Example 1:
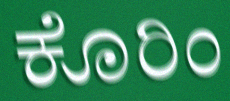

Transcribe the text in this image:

ಕೊರಿಂ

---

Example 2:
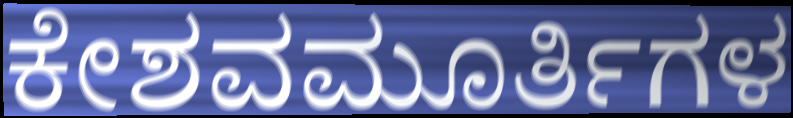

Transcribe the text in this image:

ಕೇಶವಮೂರ್ತಿಗಳ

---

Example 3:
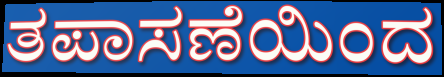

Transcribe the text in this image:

ತಪಾಸಣೆಯಿಂದ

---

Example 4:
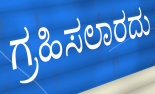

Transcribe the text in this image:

ಗ್ರಹಿಸಲಾರದು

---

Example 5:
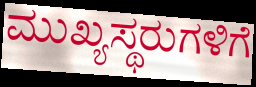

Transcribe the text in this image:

ಮುಖ್ಯಸ್ಥರುಗಳಿಗೆ